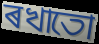
ৰখাতো